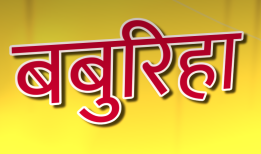
बबुरिहा